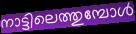
നാട്ടിലെത്തുമ്പോൾ